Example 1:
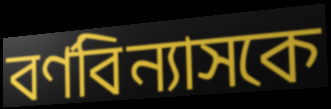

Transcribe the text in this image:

বর্ণবিন্যাসকে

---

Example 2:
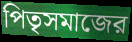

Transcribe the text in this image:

পিতৃসমাজের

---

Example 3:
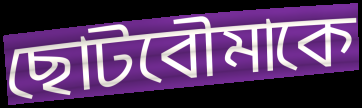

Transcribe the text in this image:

ছোটবৌমাকে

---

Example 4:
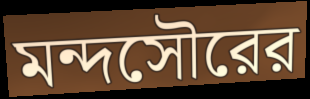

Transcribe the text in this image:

মন্দসৌরের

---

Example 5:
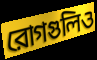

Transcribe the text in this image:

রোগগুলিও